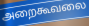
அறைகூவலை